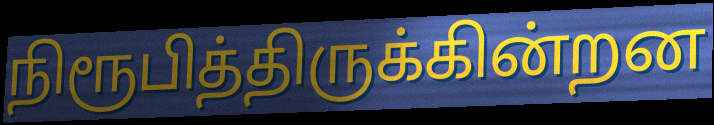
நிரூபித்திருக்கின்றன